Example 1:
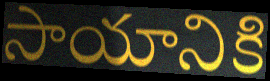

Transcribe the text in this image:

సాయానికి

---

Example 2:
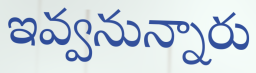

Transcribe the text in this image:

ఇవ్వనున్నారు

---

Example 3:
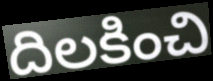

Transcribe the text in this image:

దిలకించి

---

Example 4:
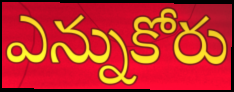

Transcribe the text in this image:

ఎన్నుకోరు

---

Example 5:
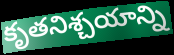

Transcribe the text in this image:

కృతనిశ్చయాన్ని